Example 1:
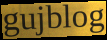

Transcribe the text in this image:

gujblog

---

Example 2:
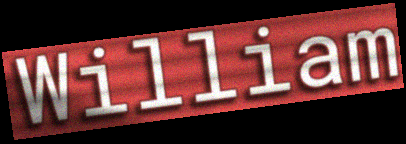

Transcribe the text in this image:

William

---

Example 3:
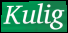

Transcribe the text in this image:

Kulig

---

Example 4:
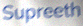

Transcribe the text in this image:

Supreeth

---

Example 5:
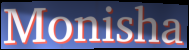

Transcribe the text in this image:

Monisha